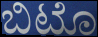
ಬಿಟೊ